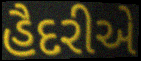
હૈદરીએ